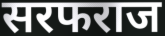
सरफराज